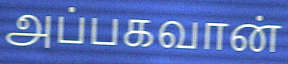
அப்பகவான்